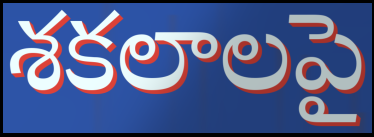
శకలాలపై